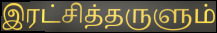
இரட்சித்தருளும்